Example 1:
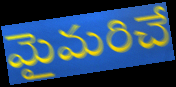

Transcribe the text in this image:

మైమరిచే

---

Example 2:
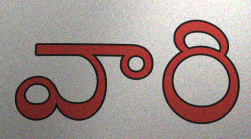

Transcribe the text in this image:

వారి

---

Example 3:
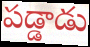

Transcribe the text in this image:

పడ్డాడు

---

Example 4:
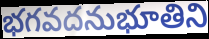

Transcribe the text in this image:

భగవదనుభూతిని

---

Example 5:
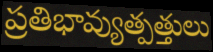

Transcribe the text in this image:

ప్రతిభావ్యుత్పత్తులు